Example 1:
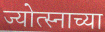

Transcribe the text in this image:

ज्योत्स्नाच्या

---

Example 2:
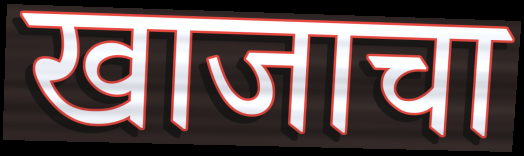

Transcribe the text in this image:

खाजाचा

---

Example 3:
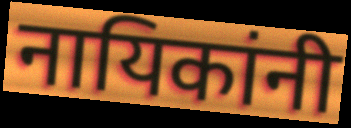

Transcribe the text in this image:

नायिकांनी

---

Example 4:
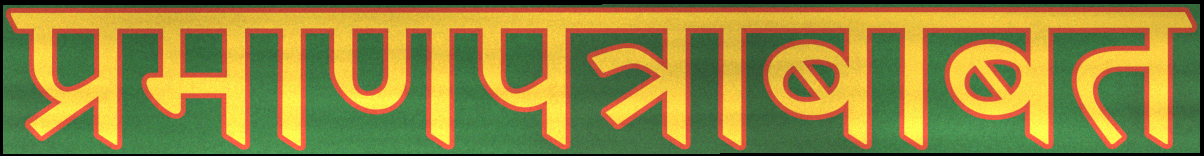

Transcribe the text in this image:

प्रमाणपत्राबाबत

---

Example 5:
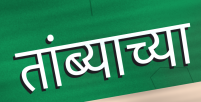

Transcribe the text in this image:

तांब्याच्या